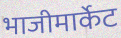
भाजीमार्केट